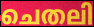
ചെതലി